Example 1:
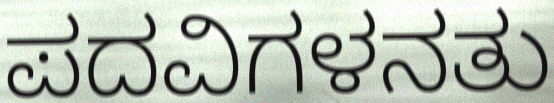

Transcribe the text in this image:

ಪದವಿಗಳನತು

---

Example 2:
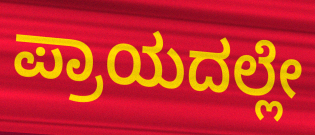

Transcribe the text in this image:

ಪ್ರಾಯದಲ್ಲೇ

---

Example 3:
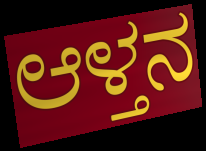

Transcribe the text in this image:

ಆಳ್ತನ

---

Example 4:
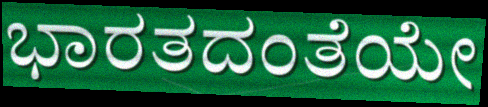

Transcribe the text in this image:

ಭಾರತದಂತೆಯೇ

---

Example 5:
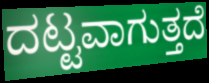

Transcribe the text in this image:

ದಟ್ಟವಾಗುತ್ತದೆ